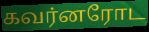
கவர்னரோட